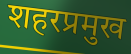
शहरप्रमुख